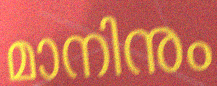
മാനിനും